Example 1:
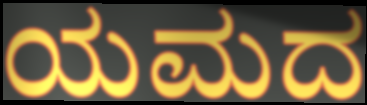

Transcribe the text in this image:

ಯಮದ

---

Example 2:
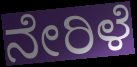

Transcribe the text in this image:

ನೇರಿಳೆ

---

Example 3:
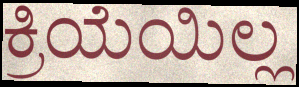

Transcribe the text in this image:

ಕ್ರಿಯೆಯಿಲ್ಲ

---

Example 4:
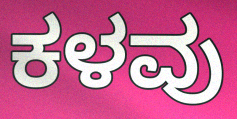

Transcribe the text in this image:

ಕಳವು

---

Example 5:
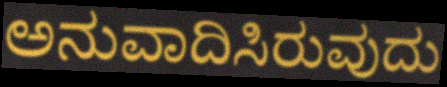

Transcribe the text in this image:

ಅನುವಾದಿಸಿರುವುದು